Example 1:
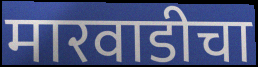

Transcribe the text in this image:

मारवाडीचा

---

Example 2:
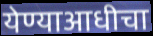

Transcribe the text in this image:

येण्याआधीचा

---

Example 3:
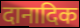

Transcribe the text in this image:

दानादिक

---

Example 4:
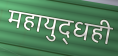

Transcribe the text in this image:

महायुद्धही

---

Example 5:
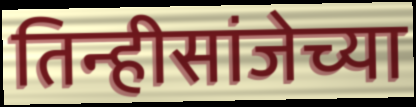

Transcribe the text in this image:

तिन्हीसांजेच्या